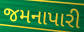
જમનાપારી